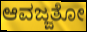
ಆವಜ್ಜತೋ